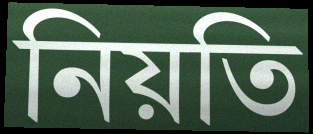
নিয়তি